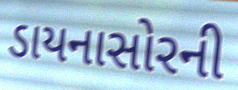
ડાયનાસોરની